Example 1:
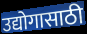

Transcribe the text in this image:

उद्योगासाठी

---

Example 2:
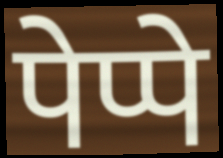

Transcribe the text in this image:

पेप्पे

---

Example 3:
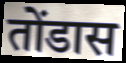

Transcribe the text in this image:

तोंडास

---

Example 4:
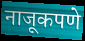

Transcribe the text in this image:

नाजूकपणे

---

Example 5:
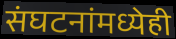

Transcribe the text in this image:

संघटनांमध्येही